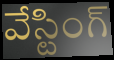
వేస్టింగ్